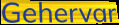
Gehervar